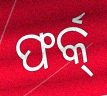
ଫର୍କ୍